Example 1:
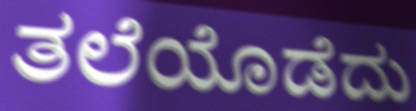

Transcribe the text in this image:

ತಲೆಯೊಡೆದು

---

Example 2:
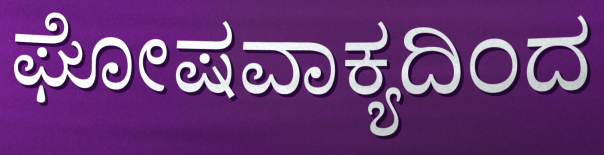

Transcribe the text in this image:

ಘೋಷವಾಕ್ಯದಿಂದ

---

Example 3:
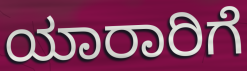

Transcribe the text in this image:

ಯಾರಾರಿಗೆ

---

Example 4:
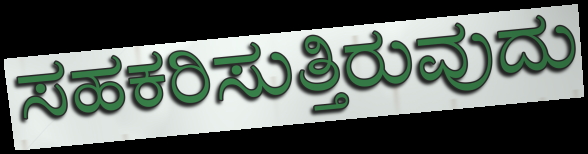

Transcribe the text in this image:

ಸಹಕರಿಸುತ್ತಿರುವುದು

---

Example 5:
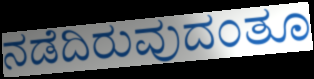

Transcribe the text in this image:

ನಡೆದಿರುವುದಂತೂ